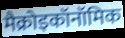
मैक्रोइकॉनॉमिक